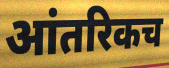
आंतरिकच